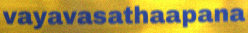
vayavasathaapana